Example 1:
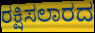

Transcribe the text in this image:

ರಕ್ಷಿಸಲಾರದ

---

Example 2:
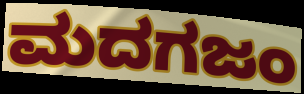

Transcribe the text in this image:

ಮದಗಜಂ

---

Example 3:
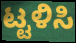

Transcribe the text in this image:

ಟ್ಟಳಿಸಿ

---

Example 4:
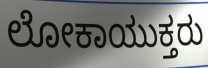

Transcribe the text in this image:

ಲೋಕಾಯುಕ್ತರು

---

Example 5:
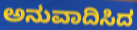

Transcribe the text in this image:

ಅನುವಾದಿಸಿದ